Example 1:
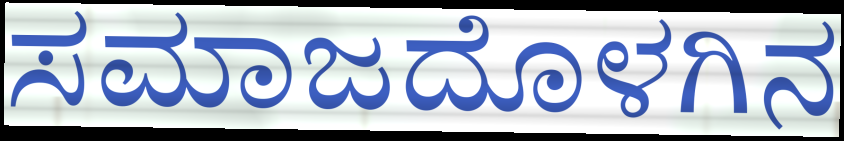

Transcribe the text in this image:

ಸಮಾಜದೊಳಗಿನ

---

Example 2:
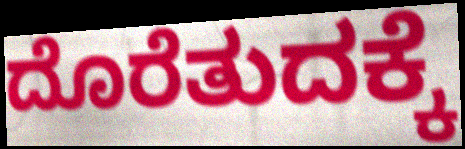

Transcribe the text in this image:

ದೊರೆತುದಕ್ಕೆ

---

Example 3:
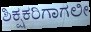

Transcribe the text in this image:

ಶಿಕ್ಷಕರಿಗಾಗಲೀ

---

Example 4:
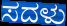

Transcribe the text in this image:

ಸದಳು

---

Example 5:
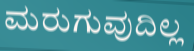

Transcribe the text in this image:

ಮರುಗುವುದಿಲ್ಲ